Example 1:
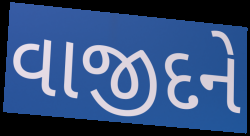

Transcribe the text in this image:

વાજીદને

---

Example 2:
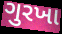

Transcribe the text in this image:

ગુરખા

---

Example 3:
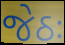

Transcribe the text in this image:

જેઠઃ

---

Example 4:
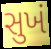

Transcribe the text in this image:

સુખં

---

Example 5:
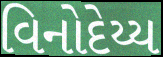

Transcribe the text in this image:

વિનોદેય્ય